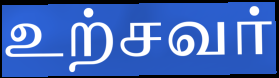
உற்சவர்